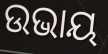
ଉଭାୟ